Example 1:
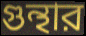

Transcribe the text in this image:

গুন্থার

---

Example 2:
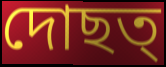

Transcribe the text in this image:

দোছত্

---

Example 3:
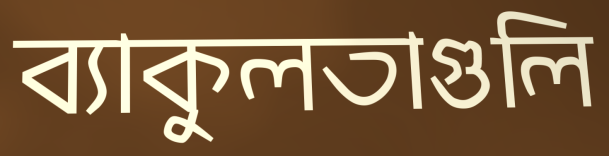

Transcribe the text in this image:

ব্যাকুলতাগুলি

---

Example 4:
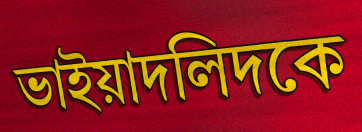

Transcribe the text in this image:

ভাইয়াদলিদকে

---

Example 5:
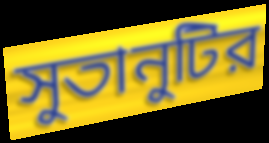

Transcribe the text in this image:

সুতানুটির